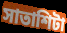
সাতাশিটা